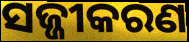
ସଜ୍ଜୀକରଣ